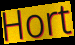
Hort